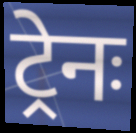
ट्रेनः